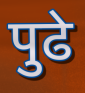
पुढे